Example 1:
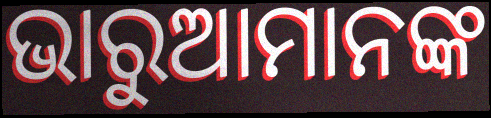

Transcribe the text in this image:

ଭାରୁଆମାନଙ୍କ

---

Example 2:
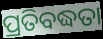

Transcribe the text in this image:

ପ୍ରତିବଦ୍ଧତା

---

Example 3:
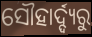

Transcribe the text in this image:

ସୌହାର୍ଦ୍ଦ୍ୟରୁ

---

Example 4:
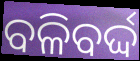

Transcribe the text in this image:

ବଳିବର୍ଦ୍ଦ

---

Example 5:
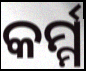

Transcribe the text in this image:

କର୍ମ୍ମ